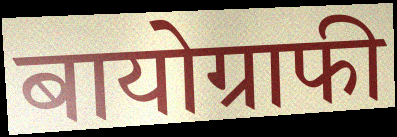
बायोग्राफी